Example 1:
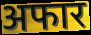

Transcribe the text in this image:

अफार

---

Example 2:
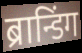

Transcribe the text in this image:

ब्रान्डिंग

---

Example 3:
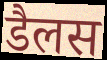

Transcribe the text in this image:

डैलस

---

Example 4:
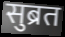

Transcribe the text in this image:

सुब्रत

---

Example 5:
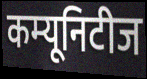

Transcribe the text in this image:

कम्यूनिटीज